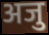
अजु